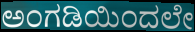
ಅಂಗಡಿಯಿಂದಲೇ